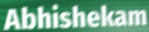
Abhishekam